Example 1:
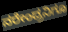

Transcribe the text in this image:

ನರೇಂದ್ರನಿಗೂ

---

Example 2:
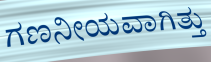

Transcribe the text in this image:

ಗಣನೀಯವಾಗಿತ್ತು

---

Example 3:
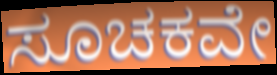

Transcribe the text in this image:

ಸೂಚಕವೇ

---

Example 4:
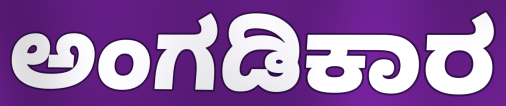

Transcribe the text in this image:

ಅಂಗಡಿಕಾರ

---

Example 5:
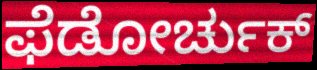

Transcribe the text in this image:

ಫೆಡೋರ್ಚುಕ್